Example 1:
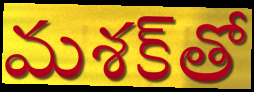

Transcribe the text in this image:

మశక్‌తో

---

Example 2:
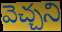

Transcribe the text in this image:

వెచ్చని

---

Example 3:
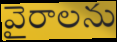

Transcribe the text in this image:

వైరాలను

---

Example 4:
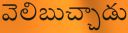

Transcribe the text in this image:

వెలిబుచ్చాడు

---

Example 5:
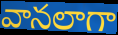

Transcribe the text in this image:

వానలాగా